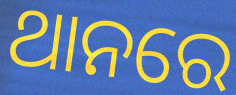
ଥାନରେ